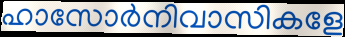
ഹാസോർനിവാസികളേ